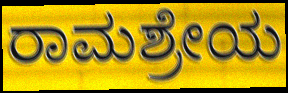
ರಾಮಶ್ರೇಯ